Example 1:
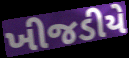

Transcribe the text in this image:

ખીજડીયે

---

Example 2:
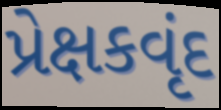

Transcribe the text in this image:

પ્રેક્ષકવૃંદ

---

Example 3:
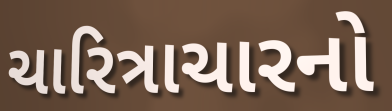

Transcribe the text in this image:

ચારિત્રાચારનો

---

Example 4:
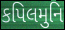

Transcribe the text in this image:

કપિલમુનિ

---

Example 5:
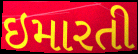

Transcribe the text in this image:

ઇમારતી